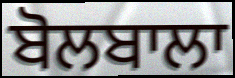
ਬੋਲਬਾਲਾ